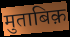
मुताबिक़